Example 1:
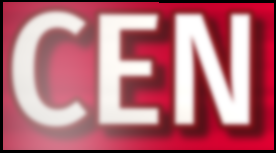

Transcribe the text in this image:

CEN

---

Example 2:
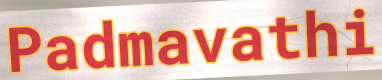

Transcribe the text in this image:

Padmavathi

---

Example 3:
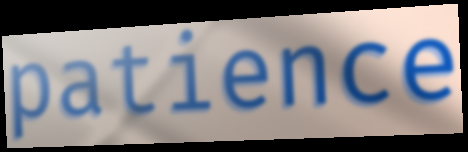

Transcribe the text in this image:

patience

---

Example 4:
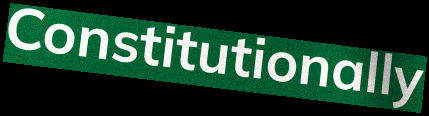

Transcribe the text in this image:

Constitutionally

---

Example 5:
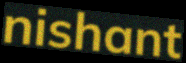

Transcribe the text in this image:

nishant